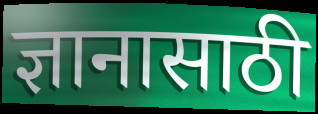
ज्ञानासाठी